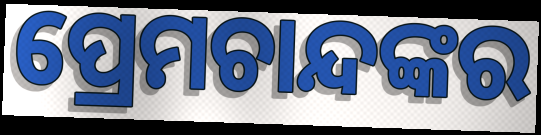
ପ୍ରେମଚାନ୍ଦଙ୍କର